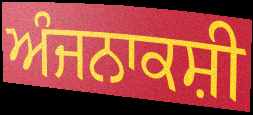
ਅੰਜਨਾਕਸ਼ੀ